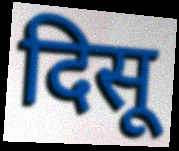
दिसू